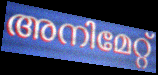
അനിമേറ്റ്